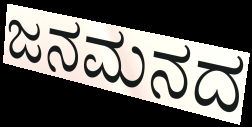
ಜನಮನದ